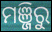
ମଞ୍ଜିରୁ